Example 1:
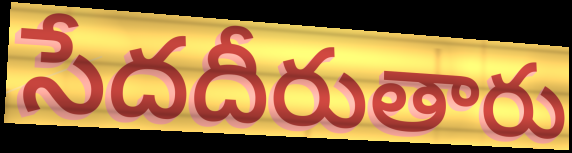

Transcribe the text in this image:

సేదదీరుతారు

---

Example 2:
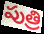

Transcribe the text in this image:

పుత్రి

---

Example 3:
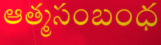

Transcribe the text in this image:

ఆత్మసంబంధ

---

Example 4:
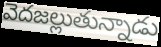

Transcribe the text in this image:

వెదజల్లుతున్నాడు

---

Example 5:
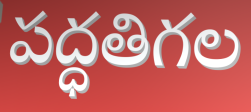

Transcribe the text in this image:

పద్ధతిగల